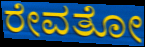
ರೇವತೋ